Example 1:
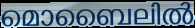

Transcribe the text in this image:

മൊബൈലിൽ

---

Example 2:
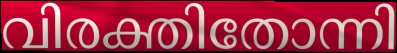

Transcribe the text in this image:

വിരക്തിതോന്നി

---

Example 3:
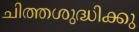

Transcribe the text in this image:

ചിത്തശുദ്ധിക്കു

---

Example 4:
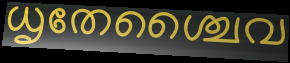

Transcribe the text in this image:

ധൃതേശ്ചൈവ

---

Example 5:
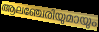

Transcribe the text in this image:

ആലഞ്ചേരിയുമായും